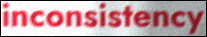
inconsistency